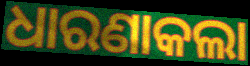
ଧାରଣାକଲା